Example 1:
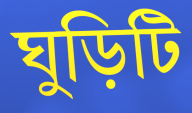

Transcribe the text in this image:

ঘুড়িটি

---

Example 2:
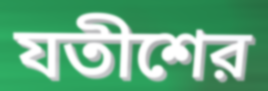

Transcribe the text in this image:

যতীশের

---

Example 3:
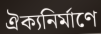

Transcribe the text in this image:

ঐক্যনির্মাণে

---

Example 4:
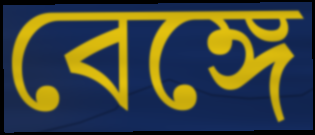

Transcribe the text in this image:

বেঙ্গে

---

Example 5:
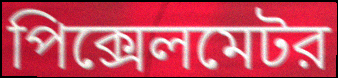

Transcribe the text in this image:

পিক্সেলমেটর